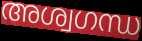
അശ്വഗന്ധ